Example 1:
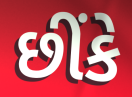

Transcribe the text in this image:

છીંકે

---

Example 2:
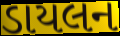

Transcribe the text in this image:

ડાયલન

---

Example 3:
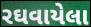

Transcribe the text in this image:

રઘવાયેલા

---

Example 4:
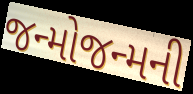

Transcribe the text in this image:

જન્મોજન્મની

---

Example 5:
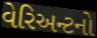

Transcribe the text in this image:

વેરિઅન્ટનો